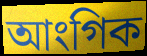
আংগিক